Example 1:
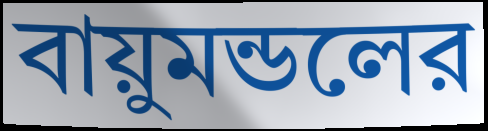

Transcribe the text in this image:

বায়ুমন্ডলের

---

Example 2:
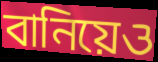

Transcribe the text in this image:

বানিয়েও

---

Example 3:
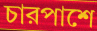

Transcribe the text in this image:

চারপাশে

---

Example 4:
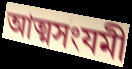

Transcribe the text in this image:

আত্মসংযমী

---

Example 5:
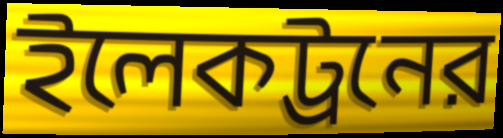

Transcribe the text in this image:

ইলেকট্রনের